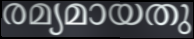
രമ്യമായതു